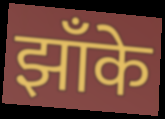
झाँके